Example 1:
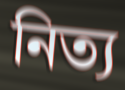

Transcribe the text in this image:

নিত্য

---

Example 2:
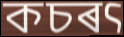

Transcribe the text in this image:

কচৰৎ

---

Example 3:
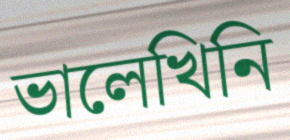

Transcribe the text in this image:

ভালেখিনি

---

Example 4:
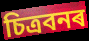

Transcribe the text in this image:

চিত্ৰবনৰ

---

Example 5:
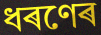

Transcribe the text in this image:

ধৰণেৰ